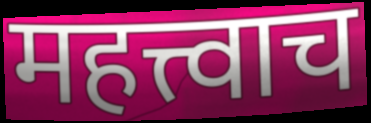
महत्त्वाच